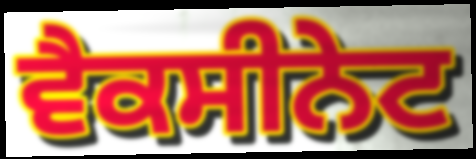
ਵੈਕਸੀਨੇਟ